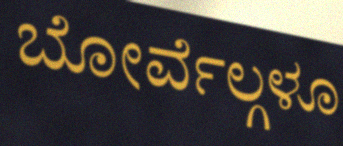
ಬೋರ್ವೆಲ್ಗಳೂ